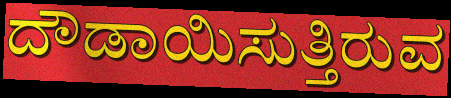
ದೌಡಾಯಿಸುತ್ತಿರುವ